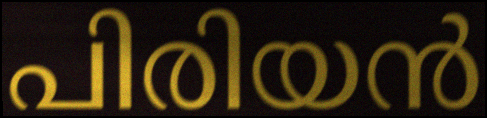
പിരിയൻ